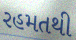
રહમતથી